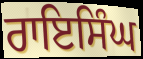
ਰਾਇਸਿੰਘ